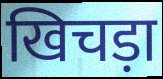
खिचड़ा